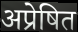
अप्रेषित